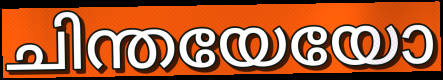
ചിന്തയേയോ